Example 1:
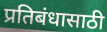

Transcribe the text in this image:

प्रतिबंधासाठी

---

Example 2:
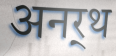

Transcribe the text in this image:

अनर्थ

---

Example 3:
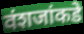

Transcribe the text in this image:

वंशजांकडे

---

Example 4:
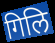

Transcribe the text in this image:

गिलि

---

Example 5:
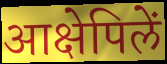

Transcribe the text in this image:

आक्षेपिलें